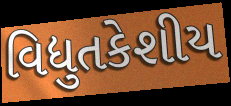
વિદ્યુતકેશીય